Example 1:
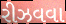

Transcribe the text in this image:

રીઝવવા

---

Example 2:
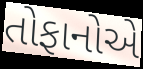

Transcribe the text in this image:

તોફાનોએ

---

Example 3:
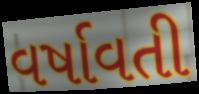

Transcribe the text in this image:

વર્ષાવતી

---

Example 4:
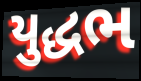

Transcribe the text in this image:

યુદ્ધભ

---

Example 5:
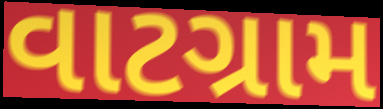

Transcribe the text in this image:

વાટગ્રામ